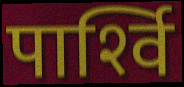
पार्श्वि